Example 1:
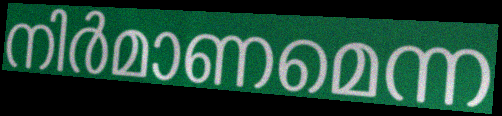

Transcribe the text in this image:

നിർമാണമെന്ന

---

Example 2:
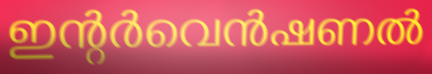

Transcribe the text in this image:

ഇന്റർവെൻഷണൽ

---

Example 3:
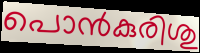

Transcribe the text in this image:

പൊൻകുരിശു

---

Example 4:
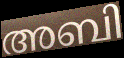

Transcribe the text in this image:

അബി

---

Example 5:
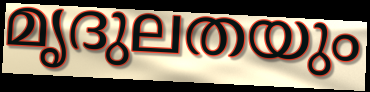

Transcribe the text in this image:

മൃദുലതയും